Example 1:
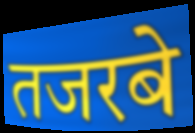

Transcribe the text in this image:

तजरबे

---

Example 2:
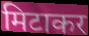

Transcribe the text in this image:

मिटाकर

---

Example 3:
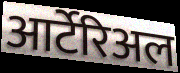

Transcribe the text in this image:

आर्टेरिअल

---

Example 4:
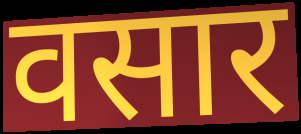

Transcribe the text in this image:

वसार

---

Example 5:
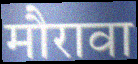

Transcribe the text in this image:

मौरावा